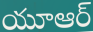
యూఆర్